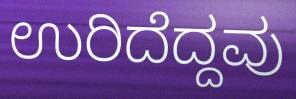
ಉರಿದೆದ್ದವು